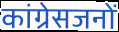
कांग्रेसजनों